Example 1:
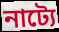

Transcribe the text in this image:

নাট্যে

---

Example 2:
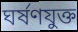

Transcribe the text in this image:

ঘর্ষণযুক্ত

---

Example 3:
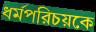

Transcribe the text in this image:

ধর্মপরিচয়কে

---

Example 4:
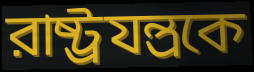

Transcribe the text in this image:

রাষ্ট্রযন্ত্রকে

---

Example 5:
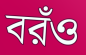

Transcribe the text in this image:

বরঁও